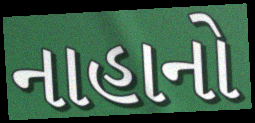
નાહાનો